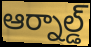
ఆర్నాల్డ్